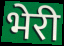
भेरी